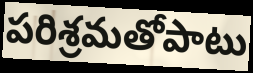
పరిశ్రమతోపాటు